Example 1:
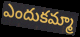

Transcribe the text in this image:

ఎందుకమ్మా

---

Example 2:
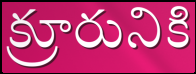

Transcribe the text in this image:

క్రూరునికి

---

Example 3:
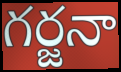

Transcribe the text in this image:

గర్జనా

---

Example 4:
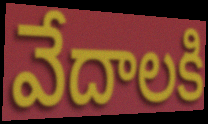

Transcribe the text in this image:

వేదాలకి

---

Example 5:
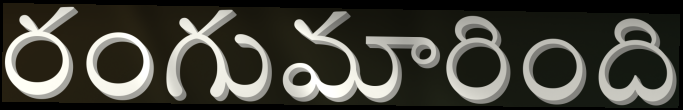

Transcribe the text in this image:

రంగుమారింది